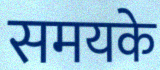
समयके